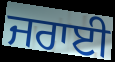
ਜਰਾਈ